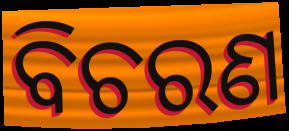
ବିଚରଣ